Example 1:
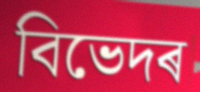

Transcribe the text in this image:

বিভেদৰ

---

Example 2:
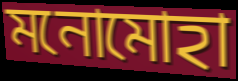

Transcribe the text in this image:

মনোমোহা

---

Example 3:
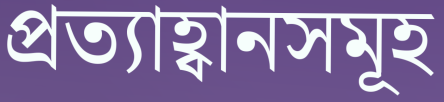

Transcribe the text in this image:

প্ৰত্যাহ্বানসমূহ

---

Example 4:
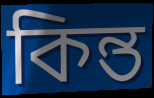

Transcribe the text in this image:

কিন্ত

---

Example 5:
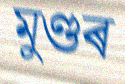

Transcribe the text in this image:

মুণ্ডৰ